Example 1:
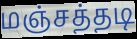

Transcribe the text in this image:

மஞ்சத்தடி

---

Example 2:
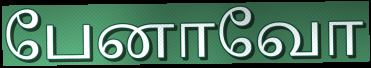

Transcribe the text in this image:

பேனாவோ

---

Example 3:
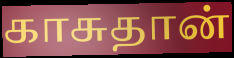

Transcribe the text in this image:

காசுதான்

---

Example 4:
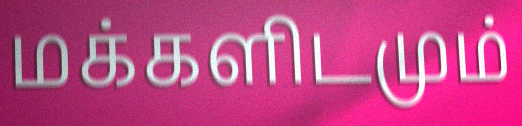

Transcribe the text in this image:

மக்களிடமும்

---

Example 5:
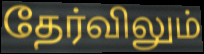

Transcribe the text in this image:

தேர்விலும்